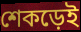
শেকড়েই